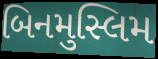
બિનમુસ્લિમ